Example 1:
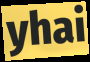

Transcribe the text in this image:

yhai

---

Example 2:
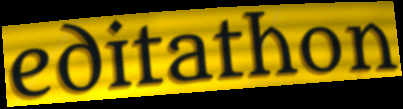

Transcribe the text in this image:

editathon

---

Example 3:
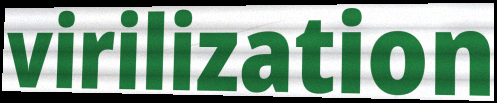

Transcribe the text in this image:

virilization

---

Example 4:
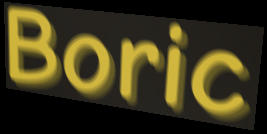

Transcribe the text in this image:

Boric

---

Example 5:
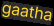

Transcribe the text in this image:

gaatha